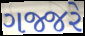
ગજ્જરે